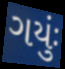
ગયુંઃ